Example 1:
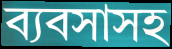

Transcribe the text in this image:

ব্যবসাসহ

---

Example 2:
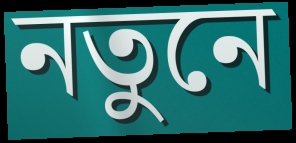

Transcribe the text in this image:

নতুনে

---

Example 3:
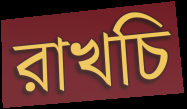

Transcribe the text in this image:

রাখচি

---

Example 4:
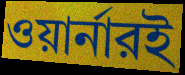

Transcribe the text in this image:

ওয়ার্নারই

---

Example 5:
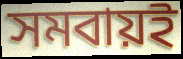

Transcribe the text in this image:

সমবায়ই